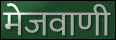
मेजवाणी